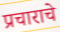
प्रचाराचे